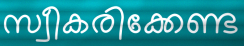
സ്വീകരിക്കേണ്ട